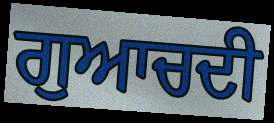
ਗੁਆਚਦੀ